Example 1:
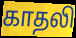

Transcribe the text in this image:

காதலி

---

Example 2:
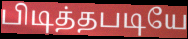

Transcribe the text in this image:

பிடித்தபடியே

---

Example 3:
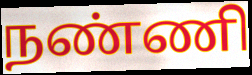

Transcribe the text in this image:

நண்ணி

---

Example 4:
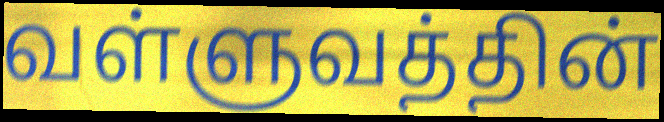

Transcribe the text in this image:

வள்ளுவத்தின்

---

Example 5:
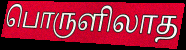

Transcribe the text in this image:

பொருளிலாத